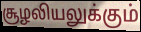
சூழலியலுக்கும்